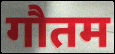
गौतम